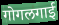
गोगलगाई